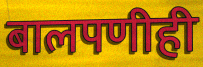
बालपणीही